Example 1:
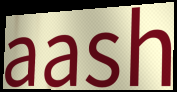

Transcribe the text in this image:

aash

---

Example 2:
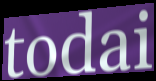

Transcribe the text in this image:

todai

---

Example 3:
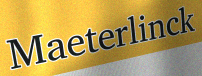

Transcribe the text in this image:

Maeterlinck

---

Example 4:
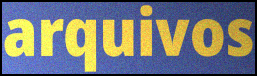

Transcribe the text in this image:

arquivos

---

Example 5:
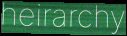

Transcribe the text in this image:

heirarchy